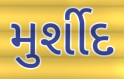
મુર્શીદ